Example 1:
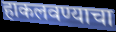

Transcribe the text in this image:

हाकलवण्याचा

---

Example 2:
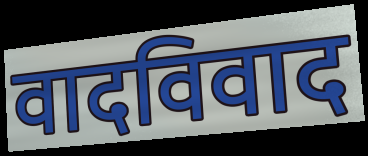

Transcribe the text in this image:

वादविवाद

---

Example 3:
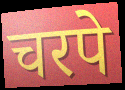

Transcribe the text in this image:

चरपे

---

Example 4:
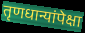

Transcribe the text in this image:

तृणधान्यांपेक्षा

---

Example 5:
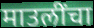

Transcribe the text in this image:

माउलींचा